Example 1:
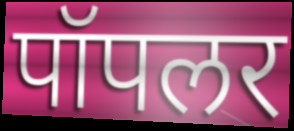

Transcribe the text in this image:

पॉपलर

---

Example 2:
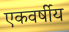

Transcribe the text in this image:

एकवर्षीय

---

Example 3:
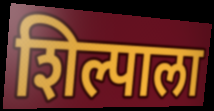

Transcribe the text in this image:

शिल्पाला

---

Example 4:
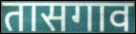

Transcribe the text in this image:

तासगाव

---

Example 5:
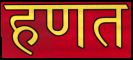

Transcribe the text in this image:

हणत